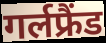
गर्लफ्रैंड